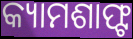
କ୍ୟାମଶାଫ୍ଟ